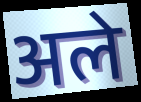
अले